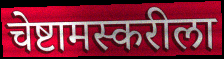
चेष्टामस्करीला